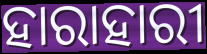
ହାରାହାରୀ